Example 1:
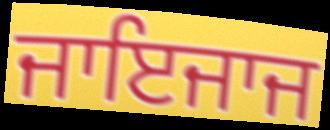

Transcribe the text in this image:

ਜਾਇਜਾਜ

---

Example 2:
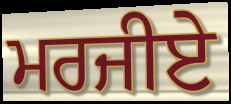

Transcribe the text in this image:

ਮਰਜੀਏ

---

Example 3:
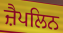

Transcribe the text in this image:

ਜ਼ੈਪਲਿਨ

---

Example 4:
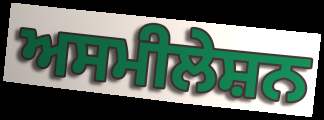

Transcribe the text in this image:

ਅਸਮੀਲੇਸ਼ਨ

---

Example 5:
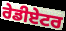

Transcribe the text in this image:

ਰੇਡੀਏਟਰ